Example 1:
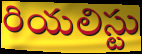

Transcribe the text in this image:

రియలిస్టు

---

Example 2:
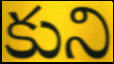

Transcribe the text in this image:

కుని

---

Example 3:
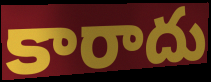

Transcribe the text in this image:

కారాదు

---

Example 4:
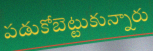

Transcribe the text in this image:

పడుకోబెట్టుకున్నారు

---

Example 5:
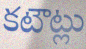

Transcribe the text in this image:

కటౌట్లు